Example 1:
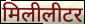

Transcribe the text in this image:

मिलीलीटर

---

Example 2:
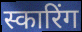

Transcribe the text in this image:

स्कारिंग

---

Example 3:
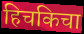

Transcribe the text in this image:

हिचकिचा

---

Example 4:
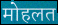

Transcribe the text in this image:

मोहलत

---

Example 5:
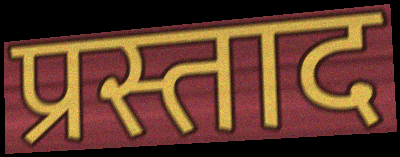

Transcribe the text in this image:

प्रस्ताद